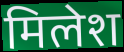
मिलेश